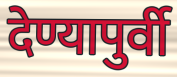
देण्यापुर्वी